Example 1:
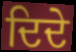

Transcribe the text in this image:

ਦਿਦੇ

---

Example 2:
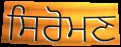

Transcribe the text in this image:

ਸਿਰੋਮਣ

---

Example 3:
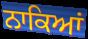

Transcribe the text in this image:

ਨਾਕਿਆਂ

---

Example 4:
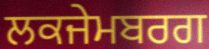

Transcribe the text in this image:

ਲਕਜੇਮਬਰਗ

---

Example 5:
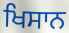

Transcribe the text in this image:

ਖਿਸਾਨ